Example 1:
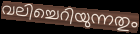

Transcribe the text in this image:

വലിച്ചെറിയുന്നതും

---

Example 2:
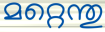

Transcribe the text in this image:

മറ്റെന്തു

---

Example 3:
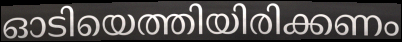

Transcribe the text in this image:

ഓടിയെത്തിയിരിക്കണം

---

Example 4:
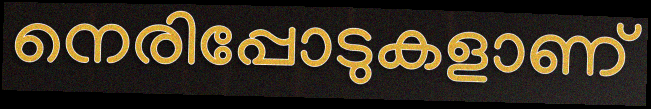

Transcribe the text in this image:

നെരിപ്പോടുകളാണ്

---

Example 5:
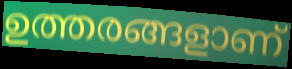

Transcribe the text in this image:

ഉത്തരങ്ങളാണ്